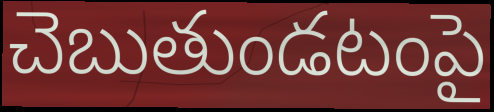
చెబుతుండటంపై